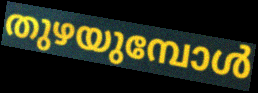
തുഴയുമ്പോൾ